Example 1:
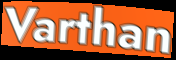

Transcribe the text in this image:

Varthan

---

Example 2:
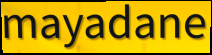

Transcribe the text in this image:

mayadane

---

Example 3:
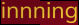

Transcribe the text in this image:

innning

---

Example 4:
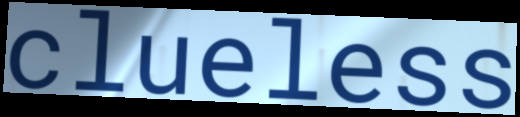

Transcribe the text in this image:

clueless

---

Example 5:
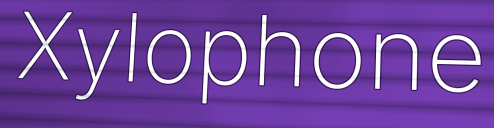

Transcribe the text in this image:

Xylophone